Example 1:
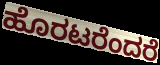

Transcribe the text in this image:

ಹೊರಟರೆಂದರೆ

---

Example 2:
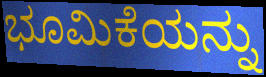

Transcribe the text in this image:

ಭೂಮಿಕೆಯನ್ನು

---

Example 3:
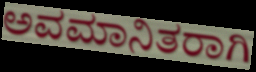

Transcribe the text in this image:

ಅವಮಾನಿತರಾಗಿ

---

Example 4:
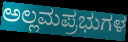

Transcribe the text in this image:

ಅಲ್ಲಮಪ್ರಭುಗಳ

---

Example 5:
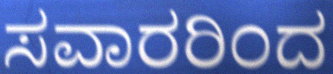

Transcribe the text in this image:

ಸವಾರರಿಂದ